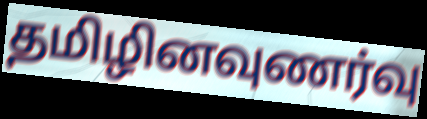
தமிழினவுணர்வு